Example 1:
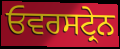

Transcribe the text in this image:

ਓਵਰਸਟ੍ਰੇਨ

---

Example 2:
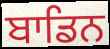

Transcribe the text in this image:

ਬਾਡਿਨ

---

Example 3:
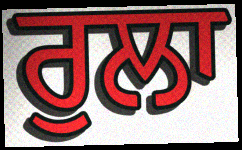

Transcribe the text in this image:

ਰੁਲਾ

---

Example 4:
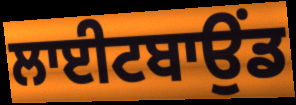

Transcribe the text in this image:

ਲਾਈਟਬਾਉਂਡ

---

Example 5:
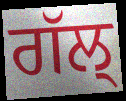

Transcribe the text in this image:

ਗੱਲ੍